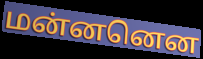
மன்னனென